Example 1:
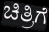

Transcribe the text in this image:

ಚಿತ್ರಿಗೆ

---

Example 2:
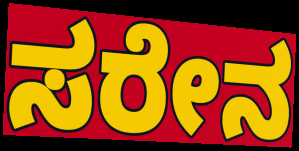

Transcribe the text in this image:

ಸರೇನ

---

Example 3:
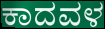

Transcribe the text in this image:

ಕಾದವಳ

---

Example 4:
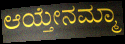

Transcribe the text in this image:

ಆಯ್ತೇನಮ್ಮಾ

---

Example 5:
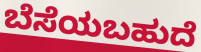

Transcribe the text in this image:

ಬೆಸೆಯಬಹುದೆ